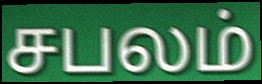
சபலம்